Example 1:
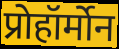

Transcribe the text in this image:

प्रोहॉर्मोन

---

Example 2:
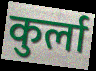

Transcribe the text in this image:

कुर्ला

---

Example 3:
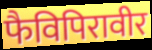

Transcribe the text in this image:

फैविपिरावीर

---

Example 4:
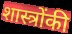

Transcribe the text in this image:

शास्त्रोंकी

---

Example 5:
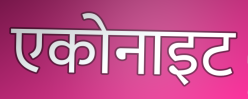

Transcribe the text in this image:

एकोनाइट